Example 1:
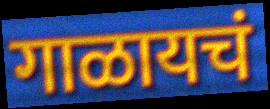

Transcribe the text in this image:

गाळायचं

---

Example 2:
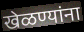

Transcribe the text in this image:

खेळण्यांना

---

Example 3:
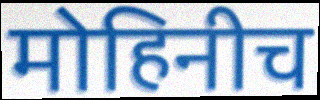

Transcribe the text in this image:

मोहिनीच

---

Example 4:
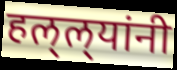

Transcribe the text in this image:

हल्ल्यांनी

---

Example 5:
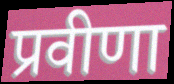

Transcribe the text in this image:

प्रवीणा